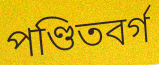
পণ্ডিতবর্গ